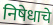
निषेधाचे